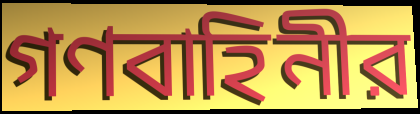
গণবাহিনীর